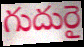
గుదురై